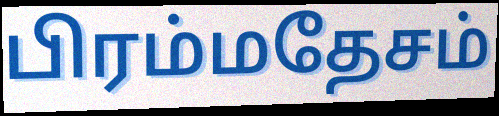
பிரம்மதேசம்